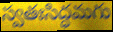
స్వతఃసిద్ధమగు